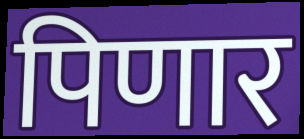
पिणार